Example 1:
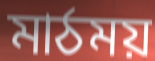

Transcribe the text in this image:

মাঠময়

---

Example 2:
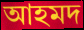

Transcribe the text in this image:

আহমদ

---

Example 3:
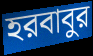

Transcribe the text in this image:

হরবাবুর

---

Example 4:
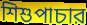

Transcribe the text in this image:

শিশুপাচার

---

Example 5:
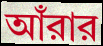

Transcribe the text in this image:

আঁরার